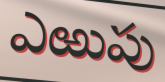
ఎఱుపు